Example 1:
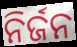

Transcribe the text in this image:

ନିର୍ଜନ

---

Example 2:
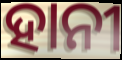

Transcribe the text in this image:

ହାନୀ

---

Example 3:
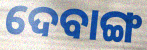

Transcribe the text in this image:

ଦେବାଙ୍ଗ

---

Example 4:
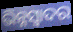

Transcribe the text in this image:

ଭିନ୍ନସ୍ବାଦର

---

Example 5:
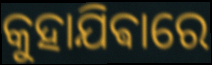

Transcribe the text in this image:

କୁହାଯିଵାରେ